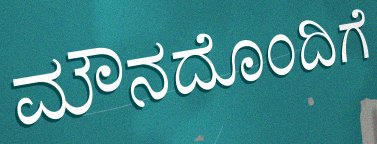
ಮೌನದೊಂದಿಗೆ